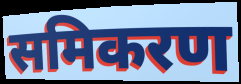
समिकरण